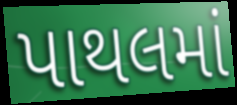
પાથલમાં